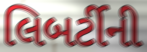
લિબર્ટીની